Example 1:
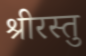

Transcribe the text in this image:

श्रीरस्तु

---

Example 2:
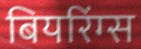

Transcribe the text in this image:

बियरिंग्स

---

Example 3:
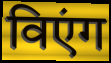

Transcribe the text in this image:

विएंग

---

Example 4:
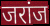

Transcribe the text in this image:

जरांज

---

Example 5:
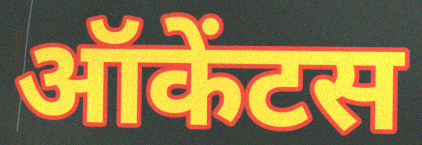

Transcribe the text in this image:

ऑकेंटस